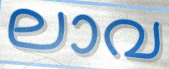
ലാവ